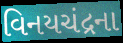
વિનયચંદ્રના